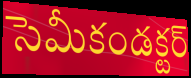
సెమీకండక్టర్